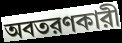
অবতরণকারী